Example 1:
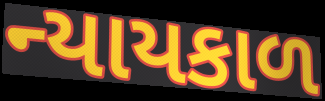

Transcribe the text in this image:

ન્યાયકાળ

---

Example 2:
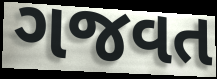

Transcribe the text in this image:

ગજવત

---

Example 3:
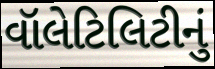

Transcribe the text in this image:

વૉલેટિલિટીનું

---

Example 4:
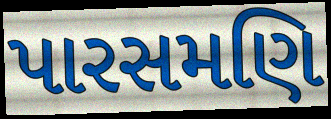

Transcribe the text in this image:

પારસમણિ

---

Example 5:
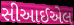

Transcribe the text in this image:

સીઆઈએલ